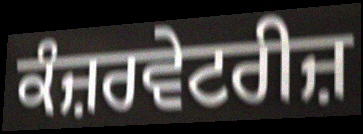
ਕੰਜ਼ਰਵੇਟਰੀਜ਼